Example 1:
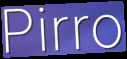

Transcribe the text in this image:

Pirro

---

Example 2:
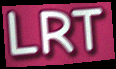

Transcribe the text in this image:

LRT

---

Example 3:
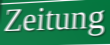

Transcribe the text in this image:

Zeitung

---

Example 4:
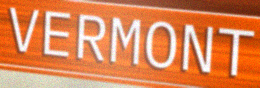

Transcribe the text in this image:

VERMONT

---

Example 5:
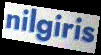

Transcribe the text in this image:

nilgiris